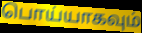
பொய்யாகவும்